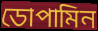
ডোপামিন